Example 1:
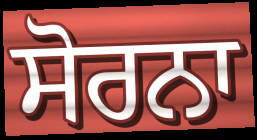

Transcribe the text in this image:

ਸੋਰਨਾ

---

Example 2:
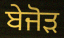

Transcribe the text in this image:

ਬੇਜੋੜ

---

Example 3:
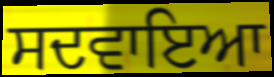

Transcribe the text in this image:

ਸਦਵਾਇਆ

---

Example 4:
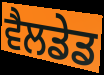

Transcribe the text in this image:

ਵੈਲਡੇਡ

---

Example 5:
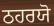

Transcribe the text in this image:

ਠਹਰਯੋ